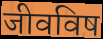
जीवविष